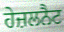
ਹੇਜ਼ਲਨੈਟ